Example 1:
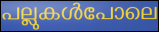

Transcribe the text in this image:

പല്ലുകൾപോലെ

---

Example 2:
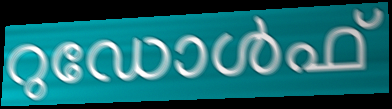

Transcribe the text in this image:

റുഡോൾഫ്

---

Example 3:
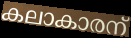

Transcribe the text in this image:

കലാകാരന്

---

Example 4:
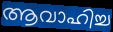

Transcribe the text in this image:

ആവാഹിച്ച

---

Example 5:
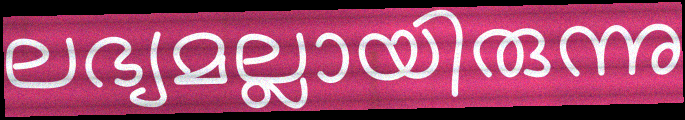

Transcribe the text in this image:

ലഭ്യമല്ലായിരുന്നു